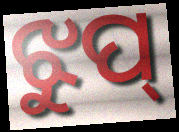
ଝୁପ୍